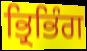
ਭ੍ਰਿਭਿੰਗ